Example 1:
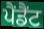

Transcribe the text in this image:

ਪੈਂਡੈਂਟ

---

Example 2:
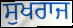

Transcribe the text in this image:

ਸੁਖਰਾਜ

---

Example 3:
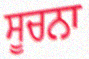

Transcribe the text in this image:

ਸੂਚਨਾ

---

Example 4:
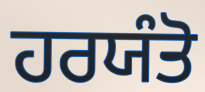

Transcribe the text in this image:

ਹਰਯੰਤੋ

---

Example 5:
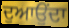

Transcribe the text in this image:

ਦੁਆਉਂਦਾ